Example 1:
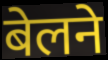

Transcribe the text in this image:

बेलने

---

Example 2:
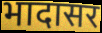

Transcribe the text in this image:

भादासर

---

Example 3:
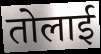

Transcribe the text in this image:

तोलाई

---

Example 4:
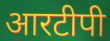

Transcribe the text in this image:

आरटीपी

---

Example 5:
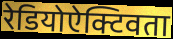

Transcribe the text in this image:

रेडियोऐक्टिवता